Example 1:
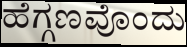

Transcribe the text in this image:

ಹೆಗ್ಗಣವೊಂದು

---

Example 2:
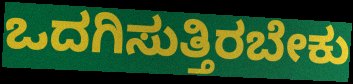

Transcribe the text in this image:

ಒದಗಿಸುತ್ತಿರಬೇಕು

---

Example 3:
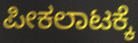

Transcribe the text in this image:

ಪೀಕಲಾಟಕ್ಕೆ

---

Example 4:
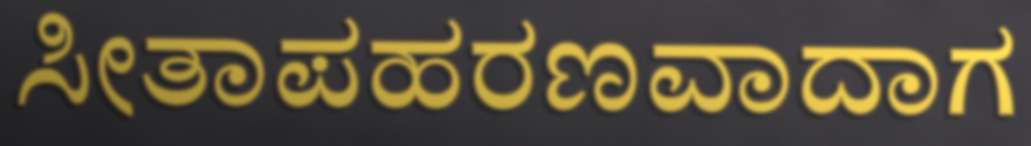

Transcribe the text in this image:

ಸೀತಾಪಹರಣವಾದಾಗ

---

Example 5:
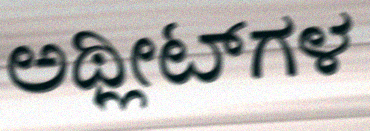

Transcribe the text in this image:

ಅಥ್ಲೀಟ್‌ಗಳ